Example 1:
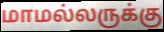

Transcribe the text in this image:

மாமல்லருக்கு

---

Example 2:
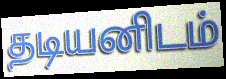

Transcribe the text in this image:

தடியனிடம்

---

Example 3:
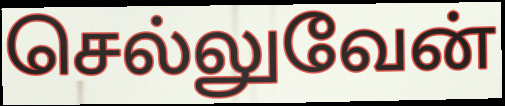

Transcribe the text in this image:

செல்லுவேன்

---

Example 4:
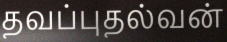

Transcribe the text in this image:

தவப்புதல்வன்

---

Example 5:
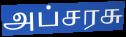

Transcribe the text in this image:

அப்சரசு